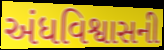
અંધવિશ્વાસની